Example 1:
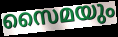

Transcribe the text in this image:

സൈമയും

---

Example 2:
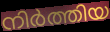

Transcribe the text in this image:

നിർത്തിയ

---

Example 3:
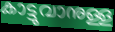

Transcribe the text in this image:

കാട്ടുവാനുള്ള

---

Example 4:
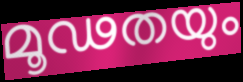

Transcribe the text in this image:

മൂഢതയും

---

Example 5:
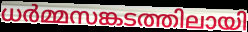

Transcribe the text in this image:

ധർമ്മസങ്കടത്തിലായി